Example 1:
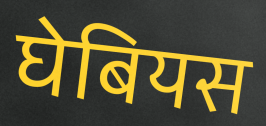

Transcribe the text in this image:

घेबियस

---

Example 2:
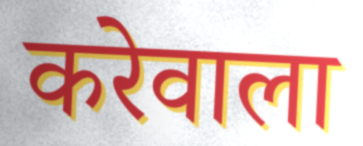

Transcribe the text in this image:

करेवाला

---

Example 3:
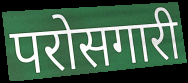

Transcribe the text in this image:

परोसगारी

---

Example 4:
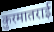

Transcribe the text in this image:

कुरमातराई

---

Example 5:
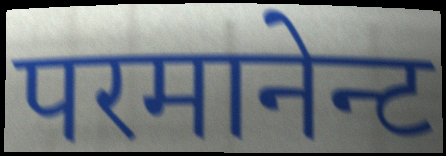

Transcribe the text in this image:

परमानेन्ट